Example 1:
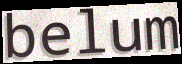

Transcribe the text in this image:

belum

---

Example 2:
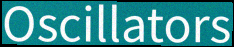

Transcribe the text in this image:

Oscillators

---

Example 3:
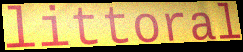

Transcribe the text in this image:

littoral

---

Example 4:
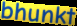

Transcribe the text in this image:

bhunkt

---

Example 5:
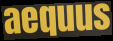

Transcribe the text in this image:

aequus